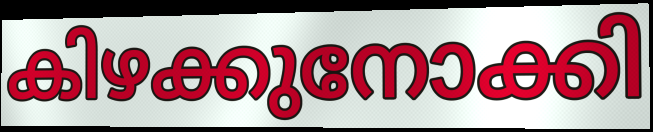
കിഴക്കുനോക്കി